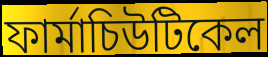
ফাৰ্মাচিউটিকেল